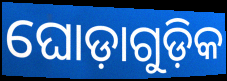
ଘୋଡ଼ାଗୁଡ଼ିକ